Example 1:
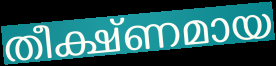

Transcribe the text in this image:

തീക്ഷ്‌ണമായ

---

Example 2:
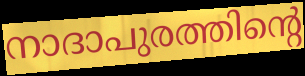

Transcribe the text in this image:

നാദാപുരത്തിന്റെ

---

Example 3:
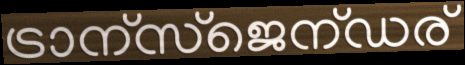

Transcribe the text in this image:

ട്രാന്സ്ജെന്ഡര്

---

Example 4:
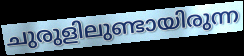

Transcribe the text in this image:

ചുരുളിലുണ്ടായിരുന്ന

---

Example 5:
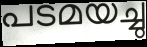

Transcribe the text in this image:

പടമയച്ചു